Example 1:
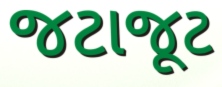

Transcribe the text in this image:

જટાજૂટ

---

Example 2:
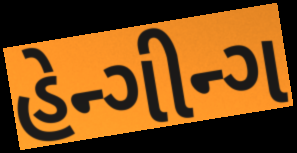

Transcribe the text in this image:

હેન્ગીન્ગ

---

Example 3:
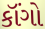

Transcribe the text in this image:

કૉંગો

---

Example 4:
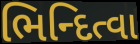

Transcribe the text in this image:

ભિન્દિત્વા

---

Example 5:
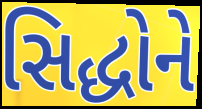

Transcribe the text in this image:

સિદ્ધોને